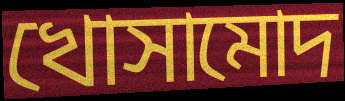
খোসামোদ